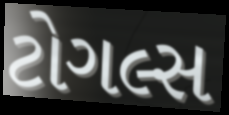
ટોગલ્સ